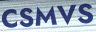
CSMVS